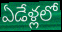
ఏడేళ్లలో